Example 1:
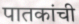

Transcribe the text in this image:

पातकांची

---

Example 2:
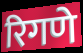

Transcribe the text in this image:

रिगणे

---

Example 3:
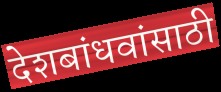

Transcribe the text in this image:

देशबांधवांसाठी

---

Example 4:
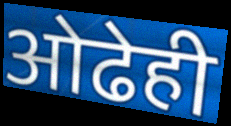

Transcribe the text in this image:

ओढेही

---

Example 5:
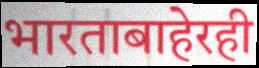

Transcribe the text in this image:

भारताबाहेरही